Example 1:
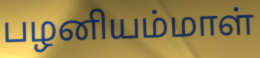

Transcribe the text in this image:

பழனியம்மாள்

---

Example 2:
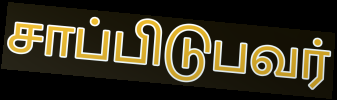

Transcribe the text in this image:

சாப்பிடுபவர்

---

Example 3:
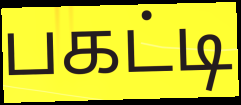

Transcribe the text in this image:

பகட்டி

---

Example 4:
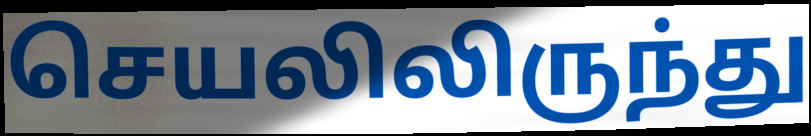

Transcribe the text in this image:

செயலிலிருந்து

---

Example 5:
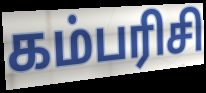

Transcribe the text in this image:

கம்பரிசி